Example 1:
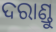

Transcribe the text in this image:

ଦରାଣ୍ଡୁ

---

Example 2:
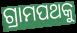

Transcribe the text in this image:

ଗ୍ରାମପଥକୁ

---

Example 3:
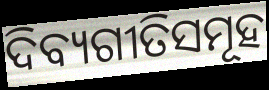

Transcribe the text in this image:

ଦିବ୍ୟଗୀତିସମୂହ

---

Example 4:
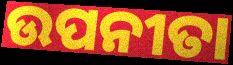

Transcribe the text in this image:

ଉପନୀତା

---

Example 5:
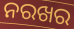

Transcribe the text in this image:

ନରଖର